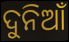
ଦୁନିଆଁ